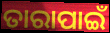
ତାରାପାଇଁ